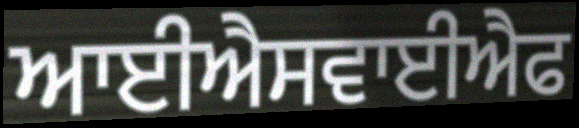
ਆਈਐਸਵਾਈਐਫ